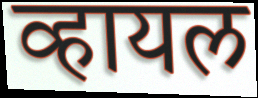
व्हायल